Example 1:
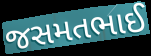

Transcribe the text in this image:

જસમતભાઈ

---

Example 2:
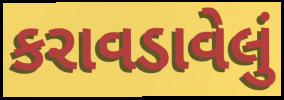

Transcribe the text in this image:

કરાવડાવેલું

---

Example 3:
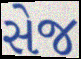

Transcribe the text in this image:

સેજ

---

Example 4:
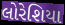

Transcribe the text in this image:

લોરેશિયા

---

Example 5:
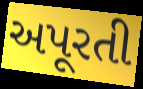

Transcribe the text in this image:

અપૂરતી